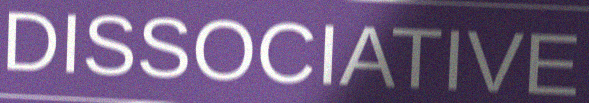
DISSOCIATIVE